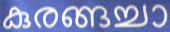
കുരങ്ങച്ചാ